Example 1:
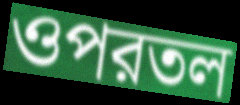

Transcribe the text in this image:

ওপরতল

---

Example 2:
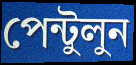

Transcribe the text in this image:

পেন্টুলুন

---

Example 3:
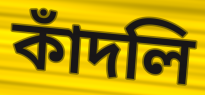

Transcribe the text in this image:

কাঁদলি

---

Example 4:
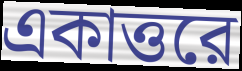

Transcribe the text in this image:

একাত্তরে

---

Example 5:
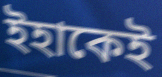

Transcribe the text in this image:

ইহাকেই